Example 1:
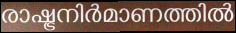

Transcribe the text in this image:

രാഷ്ട്രനിർമാണത്തിൽ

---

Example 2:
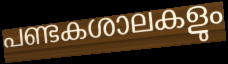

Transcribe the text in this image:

പണ്ടകശാലകളും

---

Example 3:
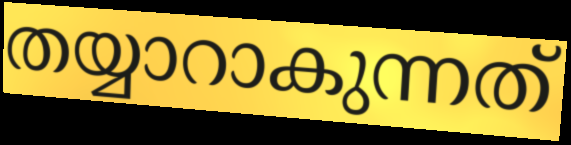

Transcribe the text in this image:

തയ്യാറാകുന്നത്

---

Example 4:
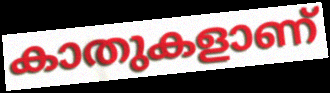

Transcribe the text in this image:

കാതുകളാണ്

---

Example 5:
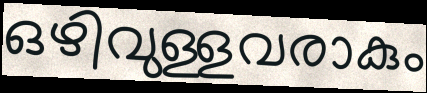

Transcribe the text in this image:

ഒഴിവുള്ളവരാകും